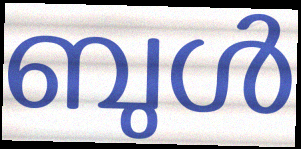
ബുൾ